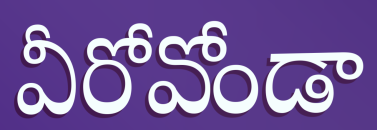
వీరోవోండా